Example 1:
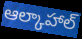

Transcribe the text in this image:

ఆల్కాహాల్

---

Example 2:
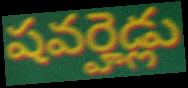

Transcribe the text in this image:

షవర్హెడ్లు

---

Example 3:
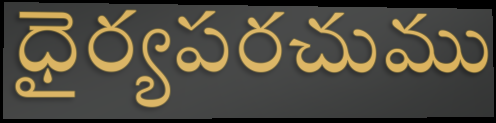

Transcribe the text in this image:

ధైర్యపరచుము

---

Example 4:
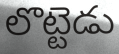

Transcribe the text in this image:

లొట్టెడు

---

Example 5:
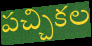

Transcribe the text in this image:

పచ్చికల